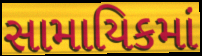
સામાયિકમાં